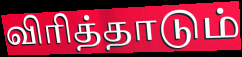
விரித்தாடும்